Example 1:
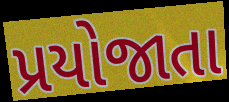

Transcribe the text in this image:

પ્રયોજાતા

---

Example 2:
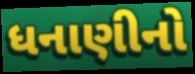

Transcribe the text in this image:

ધનાણીનો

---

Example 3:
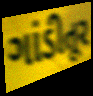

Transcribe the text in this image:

ગાંડીતૂર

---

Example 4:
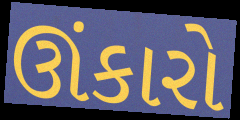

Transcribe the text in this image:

ઊંકારો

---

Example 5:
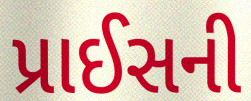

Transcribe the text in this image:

પ્રાઈસની